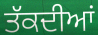
ਤੱਕਦੀਆਂ